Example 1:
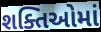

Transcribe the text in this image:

શક્તિઓમાં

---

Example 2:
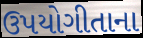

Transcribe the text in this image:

ઉપયોગીતાના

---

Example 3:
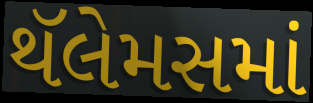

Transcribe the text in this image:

થૅલેમસમાં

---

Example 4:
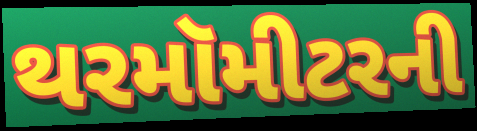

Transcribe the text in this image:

થરમૉમીટરની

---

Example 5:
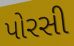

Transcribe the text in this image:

પોરસી